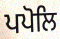
ਪਪੋਲਿ